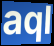
aql